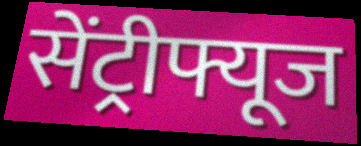
सेंट्रीफ्यूज